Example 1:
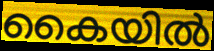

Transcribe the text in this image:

കൈയിൽ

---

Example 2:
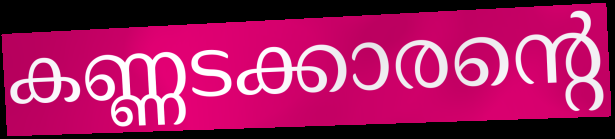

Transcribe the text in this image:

കണ്ണടക്കാരന്റെ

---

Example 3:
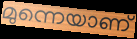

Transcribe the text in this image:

മുന്നെയാണ്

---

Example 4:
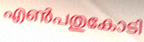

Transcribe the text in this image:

എൺപതുകോടി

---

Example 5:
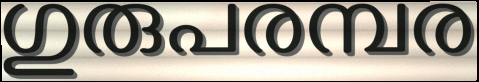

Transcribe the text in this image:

ഗുരുപരമ്പര